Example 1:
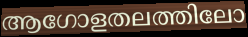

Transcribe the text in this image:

ആഗോളതലത്തിലോ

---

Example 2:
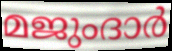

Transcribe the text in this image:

മജുംദാർ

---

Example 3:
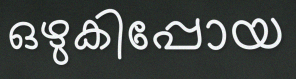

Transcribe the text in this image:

ഒഴുകിപ്പോയ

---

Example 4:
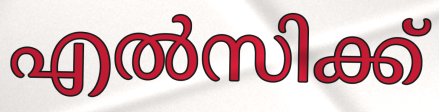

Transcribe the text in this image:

എൽസിക്ക്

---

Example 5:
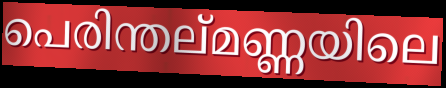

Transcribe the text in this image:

പെരിന്തല്മണ്ണയിലെ